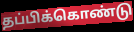
தப்பிக்கொண்டு